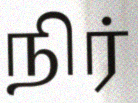
நிர்